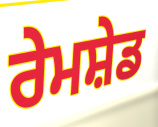
ਰੇਮਸ਼ੇਡ